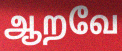
ஆறவே